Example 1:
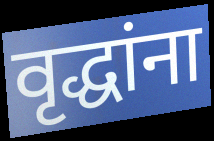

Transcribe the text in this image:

वृद्धांना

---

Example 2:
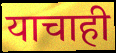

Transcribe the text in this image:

याचाही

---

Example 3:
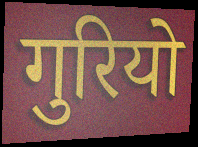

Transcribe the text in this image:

गुरियो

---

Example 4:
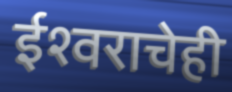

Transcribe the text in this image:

ईश्वराचेही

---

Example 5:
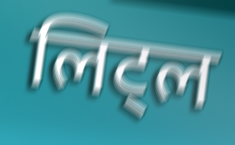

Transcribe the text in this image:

लिट्ल